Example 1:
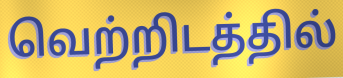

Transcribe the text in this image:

வெற்றிடத்தில்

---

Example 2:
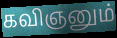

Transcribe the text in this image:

கவிஞனும்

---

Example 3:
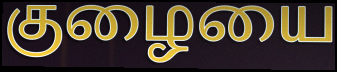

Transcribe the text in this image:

குழையை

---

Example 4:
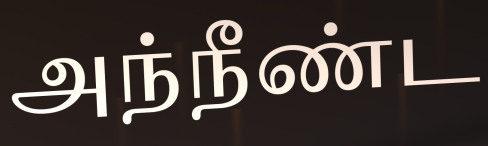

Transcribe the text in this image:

அந்நீண்ட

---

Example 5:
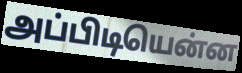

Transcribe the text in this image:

அப்பிடியென்ன